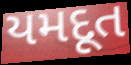
યમદૂત